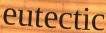
eutectic